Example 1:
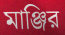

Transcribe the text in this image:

মাঞ্জির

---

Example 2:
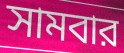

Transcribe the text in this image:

সামবার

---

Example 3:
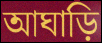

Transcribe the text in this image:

আঘাড়ি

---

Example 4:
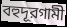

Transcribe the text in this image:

বহুদূরগামী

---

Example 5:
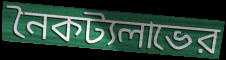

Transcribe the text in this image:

নৈকট্যলাভের